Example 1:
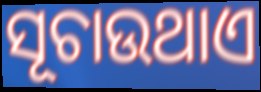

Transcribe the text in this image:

ସୂଚାଉଥାଏ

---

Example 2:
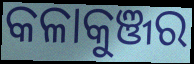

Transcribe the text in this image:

କଳାକୁଞ୍ଜର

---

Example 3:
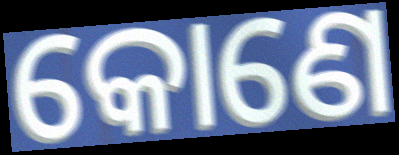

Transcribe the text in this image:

କୋଣେ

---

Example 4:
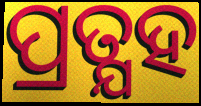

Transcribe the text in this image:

ପ୍ରତ୍ଯହ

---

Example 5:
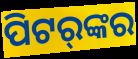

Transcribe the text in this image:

ପିଟର୍‌ଙ୍କର